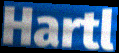
Hartl